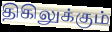
திகிலுக்கும்